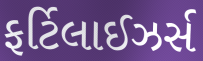
ફર્ટિલાઈઝર્સ